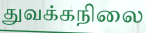
துவக்கநிலை